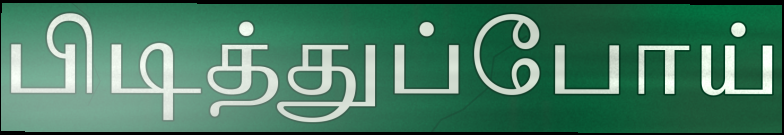
பிடித்துப்போய்